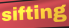
sifting